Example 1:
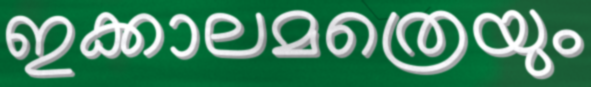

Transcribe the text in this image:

ഇക്കാലമത്രെയും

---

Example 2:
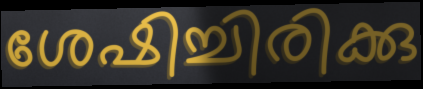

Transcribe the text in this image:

ശേഷിച്ചിരിക്കു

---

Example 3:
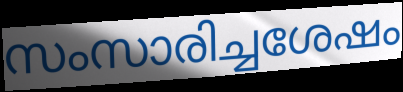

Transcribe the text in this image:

സംസാരിച്ചശേഷം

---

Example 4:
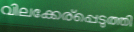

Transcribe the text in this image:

വിലക്കേര്പ്പെടുത്തി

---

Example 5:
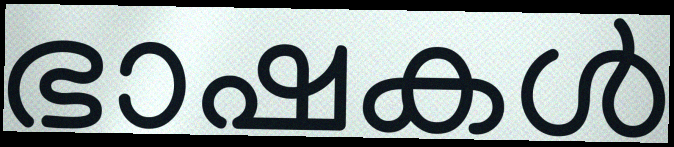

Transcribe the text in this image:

ഭാഷകൾ